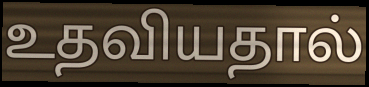
உதவியதால்